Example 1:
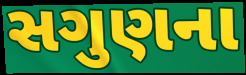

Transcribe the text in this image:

સગુણના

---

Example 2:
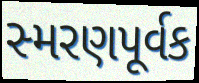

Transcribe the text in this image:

સ્મરણપૂર્વક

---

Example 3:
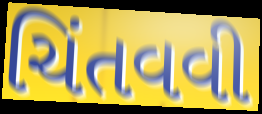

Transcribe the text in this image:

ચિંતવવી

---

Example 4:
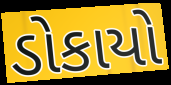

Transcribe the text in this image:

ડોકાયો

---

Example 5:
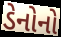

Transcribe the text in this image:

ડેનોનો